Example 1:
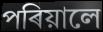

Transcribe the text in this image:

পৰিয়ালে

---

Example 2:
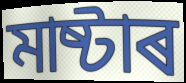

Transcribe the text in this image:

মাষ্টাৰ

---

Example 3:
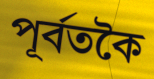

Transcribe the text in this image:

পূৰ্বতকৈ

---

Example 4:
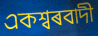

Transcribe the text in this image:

একশ্বৰবাদী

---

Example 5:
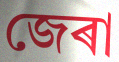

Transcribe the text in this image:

জেৰা